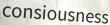
consiousness